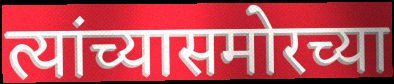
त्यांच्यासमोरच्या